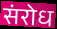
संरोध